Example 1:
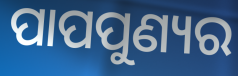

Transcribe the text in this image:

ପାପପୁଣ୍ୟର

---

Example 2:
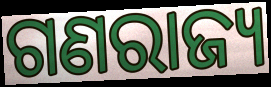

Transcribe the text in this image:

ଗଣରାଜ୍ୟ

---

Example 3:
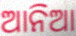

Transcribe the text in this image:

ଆନିଆ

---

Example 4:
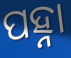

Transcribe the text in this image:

ପହ୍ନା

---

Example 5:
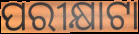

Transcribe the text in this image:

ପରୀକ୍ଷାଟା